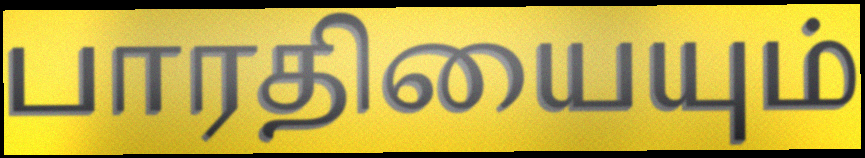
பாரதியையும்